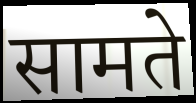
सामते